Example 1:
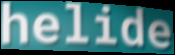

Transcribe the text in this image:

helide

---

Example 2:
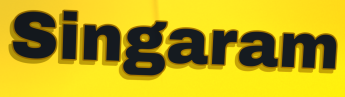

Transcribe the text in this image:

Singaram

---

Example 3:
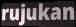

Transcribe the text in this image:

rujukan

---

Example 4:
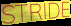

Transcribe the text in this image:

STRIDE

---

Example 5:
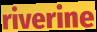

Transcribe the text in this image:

riverine